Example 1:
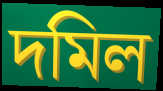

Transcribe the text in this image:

দমিল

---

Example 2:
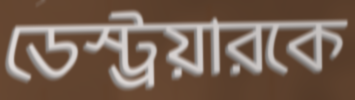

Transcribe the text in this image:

ডেস্ট্রয়ারকে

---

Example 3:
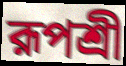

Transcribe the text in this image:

রূপশ্রী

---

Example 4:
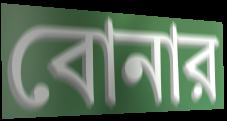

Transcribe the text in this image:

বোনার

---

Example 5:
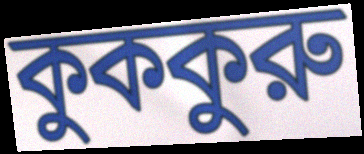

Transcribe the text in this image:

কুককুরু